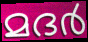
മദർ